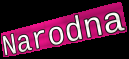
Narodna